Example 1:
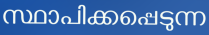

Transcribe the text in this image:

സ്ഥാപിക്കപ്പെടുന്ന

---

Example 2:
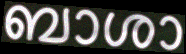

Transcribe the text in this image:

ബാശാ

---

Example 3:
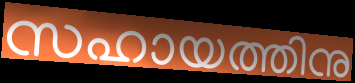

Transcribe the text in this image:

സഹായത്തിനു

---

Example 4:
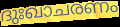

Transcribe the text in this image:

ദുഃഖാചരണം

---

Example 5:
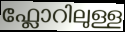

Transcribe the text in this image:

ഫ്ലോറിലുള്ള